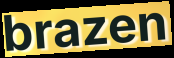
brazen